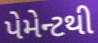
પેમેન્ટથી